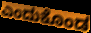
ಎಂದುಕೊಂಡ